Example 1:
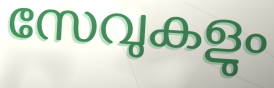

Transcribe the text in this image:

സേവുകളും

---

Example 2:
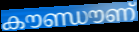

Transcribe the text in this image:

കൗണ്ഡൗണ്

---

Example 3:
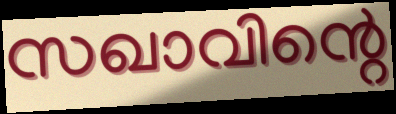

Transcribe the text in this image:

സഖാവിന്റെ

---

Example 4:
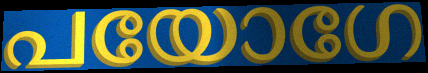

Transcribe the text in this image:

പയോഗേ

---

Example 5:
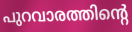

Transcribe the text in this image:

പുറവാരത്തിന്റെ